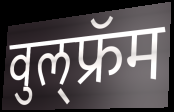
वुल्फ्रॅम